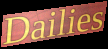
Dailies